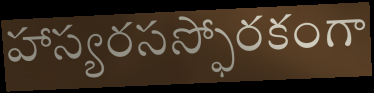
హాస్యరసస్ఫోరకంగా